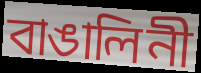
বাঙালিনী